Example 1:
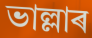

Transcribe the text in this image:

ভাল্লাৰ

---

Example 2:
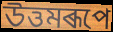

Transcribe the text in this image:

উত্তমৰূপে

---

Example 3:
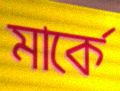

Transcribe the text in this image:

মাৰ্কে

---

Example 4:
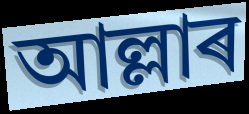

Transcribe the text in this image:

আল্লাৰ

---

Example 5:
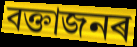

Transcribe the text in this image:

বক্তাজনৰ